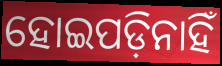
ହୋଇପଡ଼ିନାହିଁ